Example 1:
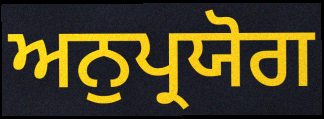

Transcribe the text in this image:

ਅਨੁਪ੍ਰਯੋਗ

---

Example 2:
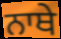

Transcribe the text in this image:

ਨਾਥੇ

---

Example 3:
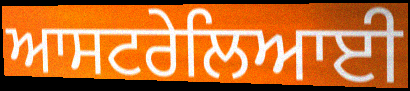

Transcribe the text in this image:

ਆਸਟਰੇਲਿਆਈ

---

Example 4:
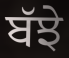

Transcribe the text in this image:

ਬੱਝੇ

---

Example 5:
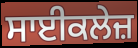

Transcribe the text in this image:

ਸਾਈਕਲੇਜ਼